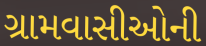
ગ્રામવાસીઓની